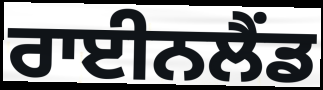
ਰਾਈਨਲੈਂਡ